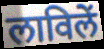
लाविलें